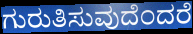
ಗುರುತಿಸುವುದೆಂದರೆ